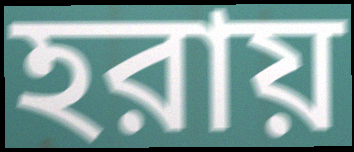
হরায়